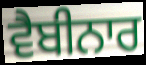
ਵੈਬੀਨਾਰ